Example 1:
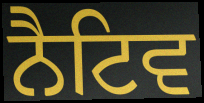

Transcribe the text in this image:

ਨੈਟਿਵ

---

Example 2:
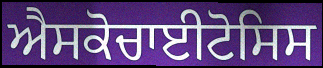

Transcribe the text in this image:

ਐਸਕੋਚਾਈਟੋਸਿਸ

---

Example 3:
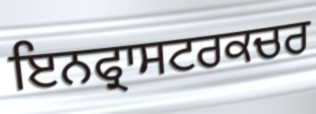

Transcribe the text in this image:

ਇਨਫ੍ਰਾਸਟਰਕਚਰ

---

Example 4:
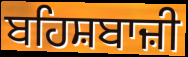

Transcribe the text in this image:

ਬਹਿਸ਼ਬਾਜ਼ੀ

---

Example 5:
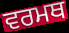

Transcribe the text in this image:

ਵਰਮਥ